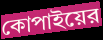
কোপাইয়ের